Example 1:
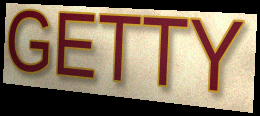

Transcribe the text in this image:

GETTY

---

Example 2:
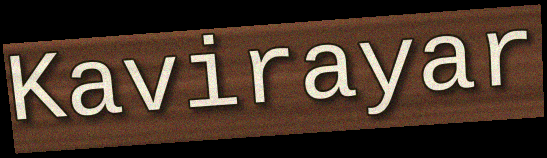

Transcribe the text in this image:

Kavirayar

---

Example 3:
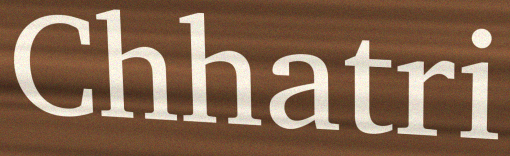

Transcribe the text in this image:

Chhatri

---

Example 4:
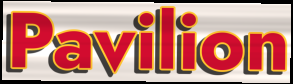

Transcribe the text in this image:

Pavilion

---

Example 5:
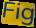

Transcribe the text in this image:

Fig